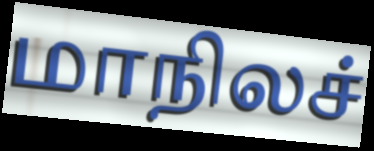
மாநிலச்